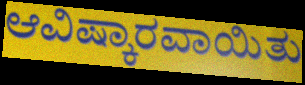
ಆವಿಷ್ಕಾರವಾಯಿತು